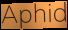
Aphid